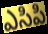
ఎసిపి